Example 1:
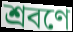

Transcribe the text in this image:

শ্রবণে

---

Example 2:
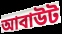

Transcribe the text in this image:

আবাউট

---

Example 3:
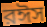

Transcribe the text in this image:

রঈস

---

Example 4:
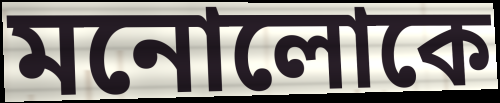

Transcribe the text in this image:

মনোলোকে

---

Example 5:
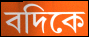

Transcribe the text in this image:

বদিকে